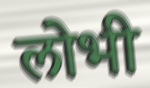
लोभी